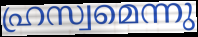
ഹ്രസ്വമെന്നു